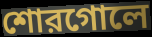
শোরগোলে